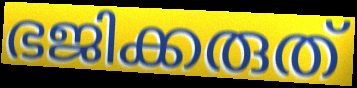
ഭജിക്കരുത്